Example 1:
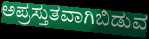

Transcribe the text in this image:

ಅಪ್ರಸ್ತುತವಾಗಿಬಿಡುವ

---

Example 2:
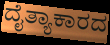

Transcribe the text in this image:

ದೈತ್ಯಾಕಾರದ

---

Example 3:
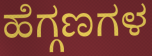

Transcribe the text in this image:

ಹೆಗ್ಗಣಗಳ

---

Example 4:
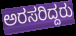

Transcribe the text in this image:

ಅರಸರಿದ್ದರು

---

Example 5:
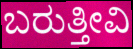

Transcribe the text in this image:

ಬರುತ್ತೀವಿ